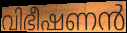
വിഭീഷണൻ